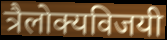
त्रैलोक्यविजयी